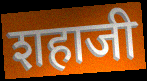
शहाजी